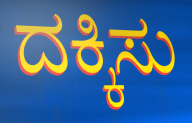
ದಕ್ಕಿಸು